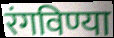
रंगविण्या